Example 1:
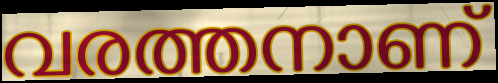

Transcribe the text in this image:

വരത്തനാണ്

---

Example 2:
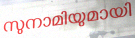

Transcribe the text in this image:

സുനാമിയുമായി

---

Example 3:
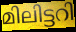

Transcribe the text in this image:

മിലിട്ടറി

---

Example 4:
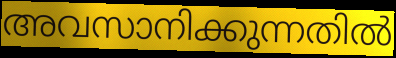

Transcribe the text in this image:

അവസാനിക്കുന്നതിൽ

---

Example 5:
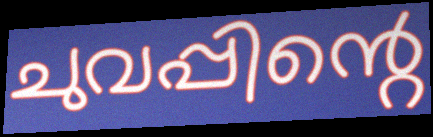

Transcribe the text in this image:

ചുവപ്പിന്റെ